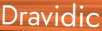
Dravidic